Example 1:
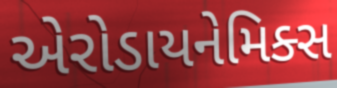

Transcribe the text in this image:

એરોડાયનેમિક્સ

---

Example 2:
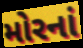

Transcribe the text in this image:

મોરનાં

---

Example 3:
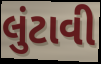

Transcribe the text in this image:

લુંટાવી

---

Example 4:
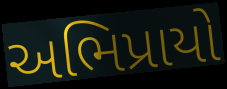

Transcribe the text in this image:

અભિપ્રાયો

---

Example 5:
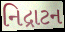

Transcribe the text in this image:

નિદ્રાટન